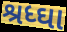
શ્રધ્ઘા